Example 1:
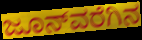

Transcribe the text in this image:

ಜೂನ್‌ವರೆಗಿನ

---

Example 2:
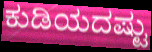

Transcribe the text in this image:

ಕುಡಿಯದಷ್ಟು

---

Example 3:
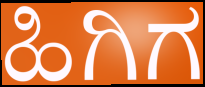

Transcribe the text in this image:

ಹಿಗಿಗ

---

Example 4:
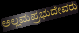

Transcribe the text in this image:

ಅಲ್ಲಮಪ್ರಭುದೇವರು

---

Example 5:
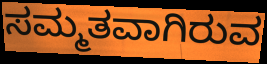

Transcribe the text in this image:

ಸಮ್ಮತವಾಗಿರುವ